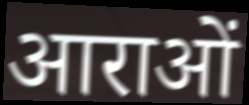
आराओं